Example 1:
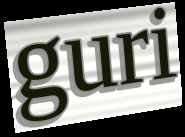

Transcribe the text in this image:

guri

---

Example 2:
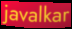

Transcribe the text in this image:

javalkar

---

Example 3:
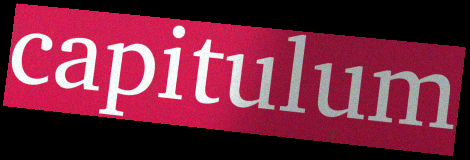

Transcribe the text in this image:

capitulum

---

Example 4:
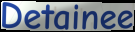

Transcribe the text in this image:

Detainee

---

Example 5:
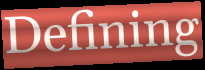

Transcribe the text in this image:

Defining